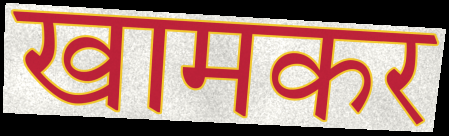
खामकर